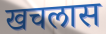
खचलास